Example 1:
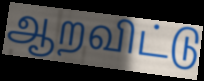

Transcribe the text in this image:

ஆறவிட்டு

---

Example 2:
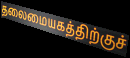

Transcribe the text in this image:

தலைமையகத்திற்குச்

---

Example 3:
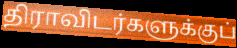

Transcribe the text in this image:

திராவிடர்களுக்குப்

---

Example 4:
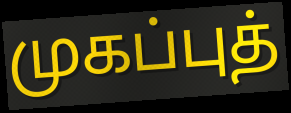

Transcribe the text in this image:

முகப்புத்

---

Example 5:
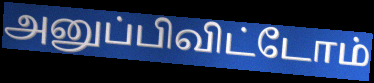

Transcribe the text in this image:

அனுப்பிவிட்டோம்